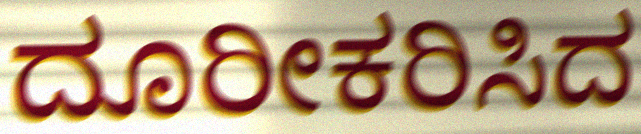
ದೂರೀಕರಿಸಿದ